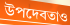
উপদেবতাও